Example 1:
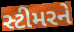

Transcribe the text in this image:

સ્ટીમરને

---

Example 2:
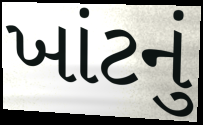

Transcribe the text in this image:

ખાંટનું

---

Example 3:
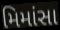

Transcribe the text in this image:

મિમાંસા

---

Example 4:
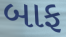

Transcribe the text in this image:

બાફ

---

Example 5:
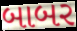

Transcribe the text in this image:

બાબર